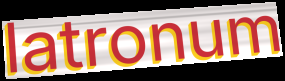
latronum